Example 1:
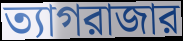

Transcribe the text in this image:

ত্যাগরাজার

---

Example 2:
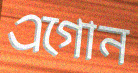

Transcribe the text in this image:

এগোন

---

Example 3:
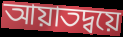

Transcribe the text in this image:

আয়াতদ্বয়ে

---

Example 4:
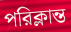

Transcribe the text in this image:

পরিক্লান্ত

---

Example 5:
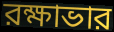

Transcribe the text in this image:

রক্ষাভার